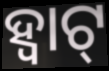
ହ୍ବାଟ୍